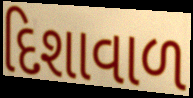
દિશાવાળ